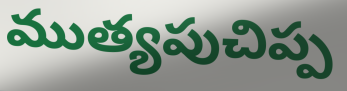
ముత్యపుచిప్ప